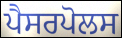
ਪੈਸਰਪੋਲਸ